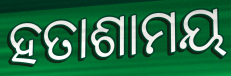
ହତାଶାମୟ